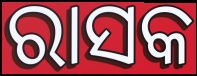
ରାସକ